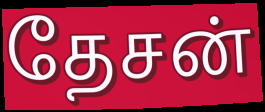
தேசன்